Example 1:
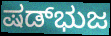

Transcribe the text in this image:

ಷಡ್‌ಭುಜ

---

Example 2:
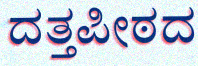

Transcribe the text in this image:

ದತ್ತಪೀಠದ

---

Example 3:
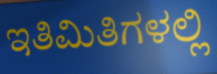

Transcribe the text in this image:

ಇತಿಮಿತಿಗಳಲ್ಲಿ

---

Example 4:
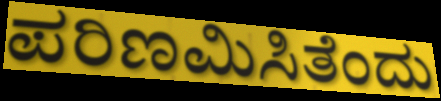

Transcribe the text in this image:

ಪರಿಣಮಿಸಿತೆಂದು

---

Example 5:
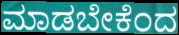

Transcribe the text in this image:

ಮಾಡಬೇಕೆಂದ